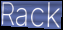
Rack